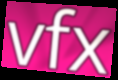
vfx